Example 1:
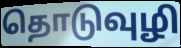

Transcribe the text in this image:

தொடுவுழி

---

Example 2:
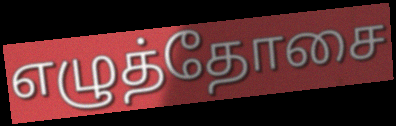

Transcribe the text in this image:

எழுத்தோசை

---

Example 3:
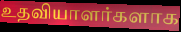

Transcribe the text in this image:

உதவியாளர்களாக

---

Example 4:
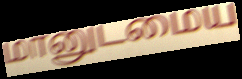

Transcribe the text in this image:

மானுடமைய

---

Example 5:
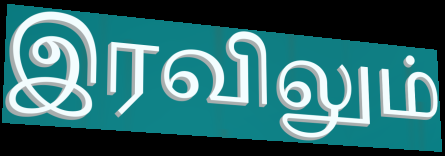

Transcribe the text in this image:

இரவிலும்